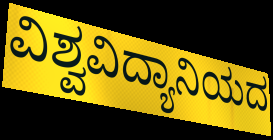
ವಿಶ್ವವಿದ್ಯಾನಿಯದ